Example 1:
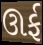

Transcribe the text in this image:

ઊર્ફ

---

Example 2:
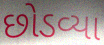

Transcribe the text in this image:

છોડવ્યા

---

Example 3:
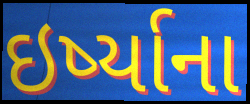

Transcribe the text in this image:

ઇર્ષ્યાના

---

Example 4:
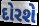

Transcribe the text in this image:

દોરશે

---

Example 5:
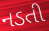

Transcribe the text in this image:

નડતી